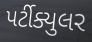
પર્ટીક્યુલર